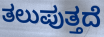
ತಲುಪುತ್ತದೆ